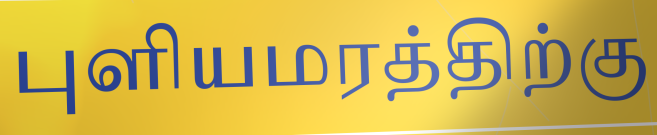
புளியமரத்திற்கு